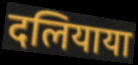
दलियाया